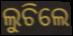
ଲୁଚିଲେ